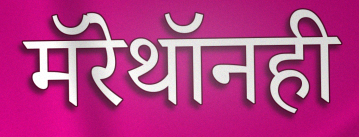
मॅरेथॉनही